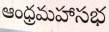
ఆంధ్రమహాసభ